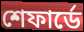
শেফার্ডে